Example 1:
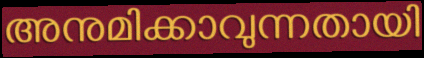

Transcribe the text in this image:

അനുമിക്കാവുന്നതായി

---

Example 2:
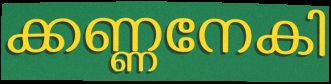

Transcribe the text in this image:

ക്കണ്ണനേകി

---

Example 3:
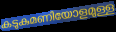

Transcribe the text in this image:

കടുകുമണിയോളമുള്ള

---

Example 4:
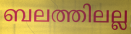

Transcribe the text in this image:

ബലത്തിലല്ല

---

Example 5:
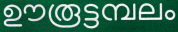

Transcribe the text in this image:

ഊരൂട്ടമ്പലം